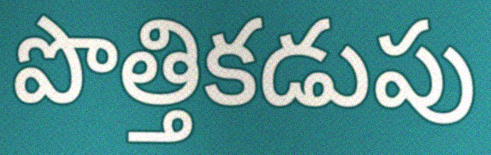
పొత్తికడుపు